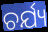
ଚର୍ଯ୍ୟ